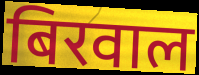
बिरवाल